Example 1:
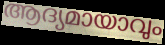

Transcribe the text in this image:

ആദ്യമായാവും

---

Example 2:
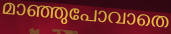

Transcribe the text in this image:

മാഞ്ഞുപോവാതെ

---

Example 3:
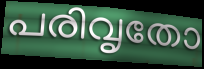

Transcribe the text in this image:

പരിവൃതോ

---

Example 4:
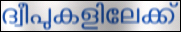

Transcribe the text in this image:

ദ്വീപുകളിലേക്ക്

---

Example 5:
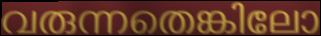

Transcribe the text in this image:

വരുന്നതെങ്കിലോ